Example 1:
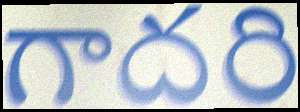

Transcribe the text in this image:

గాదరి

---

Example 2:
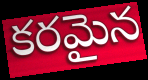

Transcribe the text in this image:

కరమైన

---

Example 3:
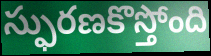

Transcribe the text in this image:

స్ఫురణకొస్తోంది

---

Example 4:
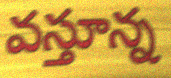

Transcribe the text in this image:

వస్తూన్న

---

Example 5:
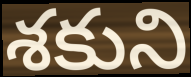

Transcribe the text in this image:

శకుని